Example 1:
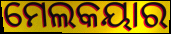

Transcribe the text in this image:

ମେଲକୟାର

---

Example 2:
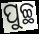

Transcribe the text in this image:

ପୁଚ୍ଛ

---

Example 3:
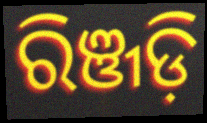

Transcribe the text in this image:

ରିଞ୍ଜଡ଼ି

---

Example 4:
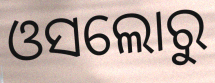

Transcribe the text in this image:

ଓସଲୋରୁ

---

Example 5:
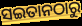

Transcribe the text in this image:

ସଇତାନଠାରୁ